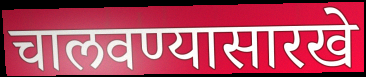
चालवण्यासारखे